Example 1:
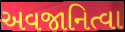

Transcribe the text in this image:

અવજાનિત્વા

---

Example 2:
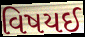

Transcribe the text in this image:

વિષયઈ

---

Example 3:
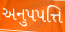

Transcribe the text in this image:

અનુપપત્તિ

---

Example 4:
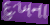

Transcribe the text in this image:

દુઃખના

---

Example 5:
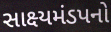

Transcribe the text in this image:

સાક્ષ્યમંડપનો